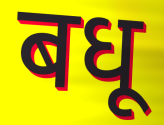
बधू